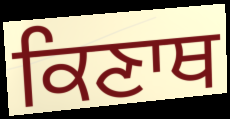
ਕਿਣਾਥ